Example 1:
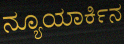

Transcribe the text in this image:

ನ್ಯೂಯಾರ್ಕಿನ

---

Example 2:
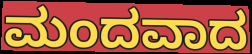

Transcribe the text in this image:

ಮಂದವಾದ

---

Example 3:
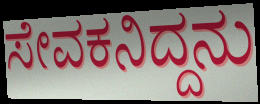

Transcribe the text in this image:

ಸೇವಕನಿದ್ದನು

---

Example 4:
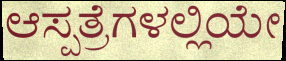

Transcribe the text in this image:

ಆಸ್ಪತ್ರೆಗಳಲ್ಲಿಯೇ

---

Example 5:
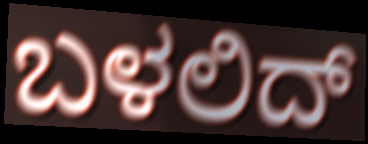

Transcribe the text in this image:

ಬಳಲಿದ್